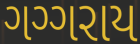
ગગ્ગરાય